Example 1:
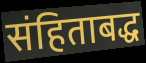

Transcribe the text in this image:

संहिताबद्ध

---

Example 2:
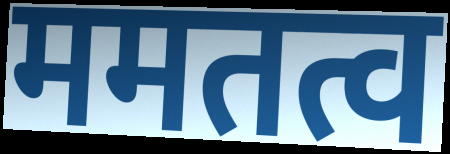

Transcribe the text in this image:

ममतत्व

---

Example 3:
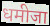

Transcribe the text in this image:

धमीजा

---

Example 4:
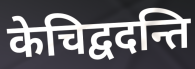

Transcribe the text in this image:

केचिद्वदन्ति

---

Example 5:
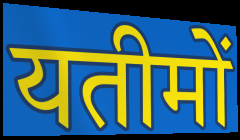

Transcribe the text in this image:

यतीमों